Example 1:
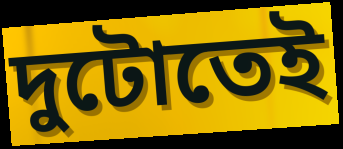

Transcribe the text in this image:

দুটোতেই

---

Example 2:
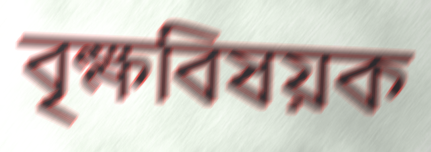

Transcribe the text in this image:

বৃক্ষবিষয়ক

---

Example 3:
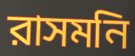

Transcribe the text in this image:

রাসমনি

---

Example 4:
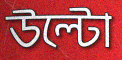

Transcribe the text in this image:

উল্টো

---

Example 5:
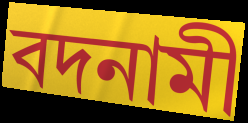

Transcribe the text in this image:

বদনামী